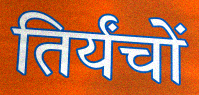
तिर्यंचों